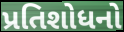
પ્રતિશોધનો